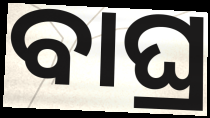
ବାଘ୍ର